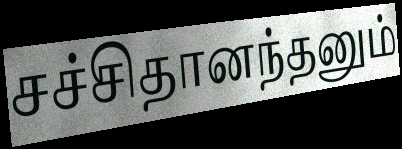
சச்சிதானந்தனும்